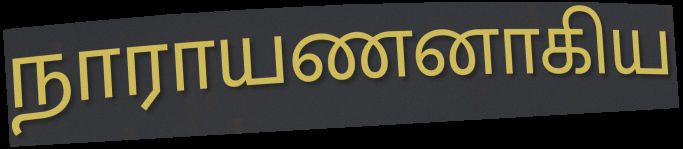
நாராயணனாகிய